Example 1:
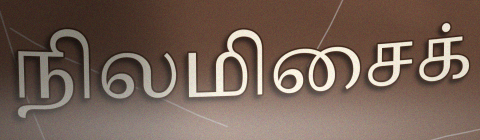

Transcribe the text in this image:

நிலமிசைக்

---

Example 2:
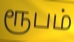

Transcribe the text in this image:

ரூபம்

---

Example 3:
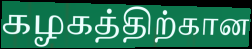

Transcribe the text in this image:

கழகத்திற்கான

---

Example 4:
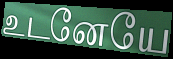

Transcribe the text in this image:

உடனேயே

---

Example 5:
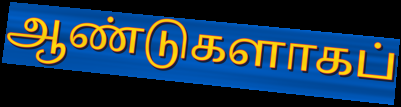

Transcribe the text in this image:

ஆண்டுகளாகப்